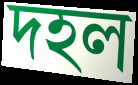
দহল